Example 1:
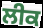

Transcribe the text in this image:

ਲੀਕ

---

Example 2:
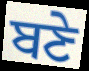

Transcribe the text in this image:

ਬਣੇ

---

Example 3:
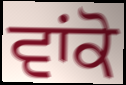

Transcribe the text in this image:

ਵਾਂਕੋ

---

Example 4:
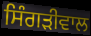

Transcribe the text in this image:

ਸਿੰਗੜੀਵਾਲ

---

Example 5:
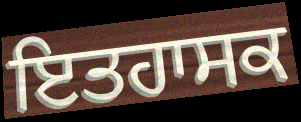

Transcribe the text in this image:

ਇਤਹਾਸਕ